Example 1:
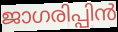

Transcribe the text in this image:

ജാഗരിപ്പിൻ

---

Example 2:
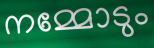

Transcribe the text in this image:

നമ്മോടും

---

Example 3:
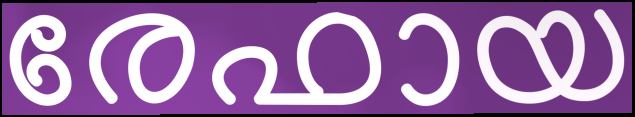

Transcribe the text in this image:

രേഫായ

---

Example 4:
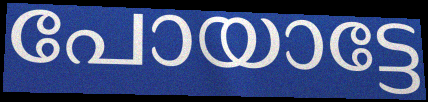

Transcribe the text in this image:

പോയാട്ടേ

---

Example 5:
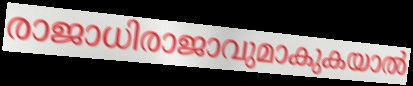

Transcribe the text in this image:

രാജാധിരാജാവുമാകുകയാൽ